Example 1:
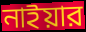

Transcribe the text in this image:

নাইয়ার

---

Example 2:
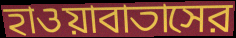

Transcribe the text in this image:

হাওয়াবাতাসের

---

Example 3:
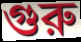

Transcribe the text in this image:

গুরু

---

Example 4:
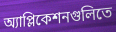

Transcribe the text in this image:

অ্যাপ্লিকেশনগুলিতে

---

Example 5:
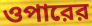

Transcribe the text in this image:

ওপারের